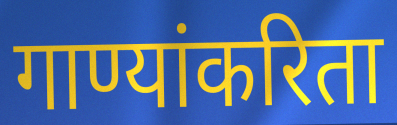
गाण्यांकरिता